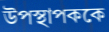
উপস্থাপককে